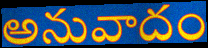
అనువాదం